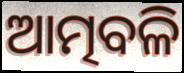
ଆତ୍ମବଳି